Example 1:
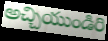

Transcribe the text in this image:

అచ్చియుండిరి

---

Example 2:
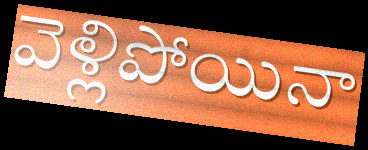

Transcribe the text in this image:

వెళ్లిపోయినా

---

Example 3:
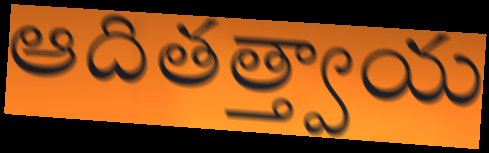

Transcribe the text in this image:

ఆదితత్త్వాయ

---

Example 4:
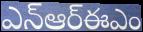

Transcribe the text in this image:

ఎన్ఆర్ఈఎం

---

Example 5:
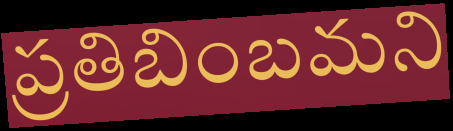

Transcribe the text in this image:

ప్రతిబింబమని